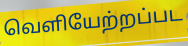
வெளியேற்றப்பட